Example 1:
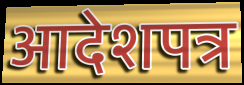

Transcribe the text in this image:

आदेशपत्र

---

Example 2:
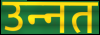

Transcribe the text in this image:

उन्नत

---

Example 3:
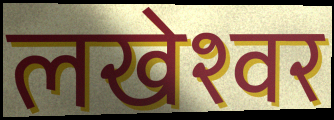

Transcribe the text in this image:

लखेश्वर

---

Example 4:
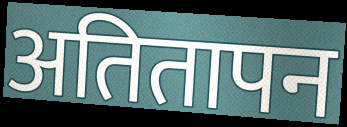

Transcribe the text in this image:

अतितापन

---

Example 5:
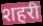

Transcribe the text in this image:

शहरी